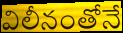
విలీనంతోనే